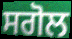
ਸਗੋਲ